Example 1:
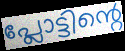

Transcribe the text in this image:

പ്ലോട്ടിന്റെ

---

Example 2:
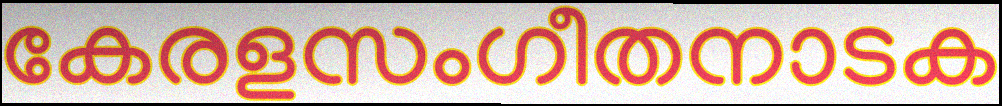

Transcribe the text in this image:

കേരളസംഗീതനാടക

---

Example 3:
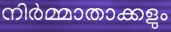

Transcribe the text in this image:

നിർമ്മാതാക്കളും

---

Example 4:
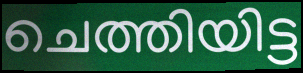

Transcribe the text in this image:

ചെത്തിയിട്ട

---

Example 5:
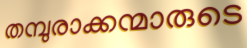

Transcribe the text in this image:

തമ്പുരാക്കന്മാരുടെ